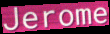
Jerome